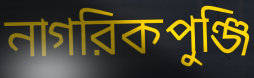
নাগরিকপুঞ্জি